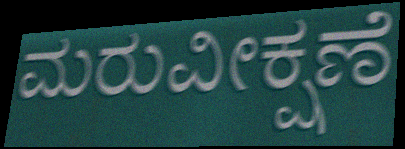
ಮರುವೀಕ್ಷಣೆ